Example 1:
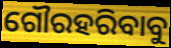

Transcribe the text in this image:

ଗୌରହରିବାବୁ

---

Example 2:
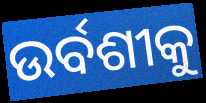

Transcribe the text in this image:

ଉର୍ବଶୀକୁ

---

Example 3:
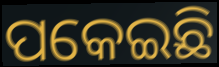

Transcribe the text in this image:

ପକେଇଛି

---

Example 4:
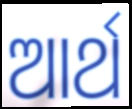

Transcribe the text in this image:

ଆର୍ଥ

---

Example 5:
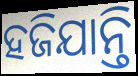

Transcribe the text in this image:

ହଜିଯାନ୍ତି